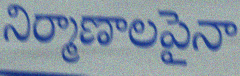
నిర్మాణాలపైనా